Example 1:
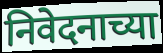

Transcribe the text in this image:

निवेदनाच्या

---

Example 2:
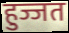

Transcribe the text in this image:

हुज्जत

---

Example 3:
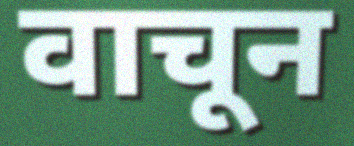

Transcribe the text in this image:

वाचून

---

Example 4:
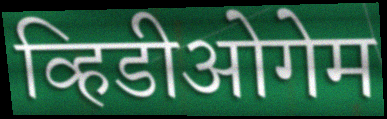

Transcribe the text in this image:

व्हिडीओगेम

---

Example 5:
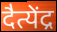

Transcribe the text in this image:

दैत्येंद्र